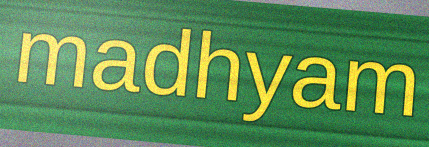
madhyam